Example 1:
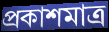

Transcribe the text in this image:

প্রকাশমাত্র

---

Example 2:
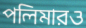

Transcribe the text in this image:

পলিমারও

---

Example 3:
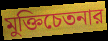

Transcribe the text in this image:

মুক্তিচেতনার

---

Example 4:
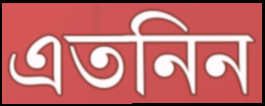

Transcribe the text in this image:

এতনিন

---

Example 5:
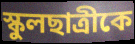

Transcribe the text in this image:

স্কুলছাত্রীকে